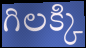
గిలక్కి